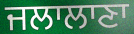
ਜਲਾਲਾਣਾ